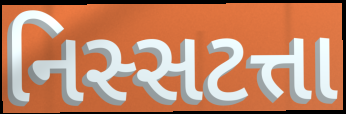
નિસ્સટત્તા